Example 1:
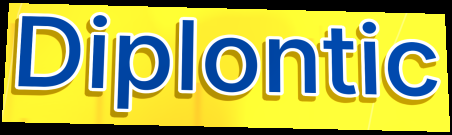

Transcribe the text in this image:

Diplontic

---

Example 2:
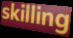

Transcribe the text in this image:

skilling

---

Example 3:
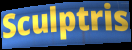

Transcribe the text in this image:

Sculptris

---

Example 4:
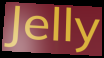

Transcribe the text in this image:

Jelly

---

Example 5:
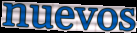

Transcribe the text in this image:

nuevos